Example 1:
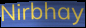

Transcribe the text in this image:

Nirbhay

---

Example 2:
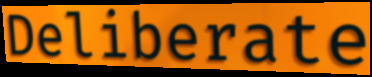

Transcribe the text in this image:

Deliberate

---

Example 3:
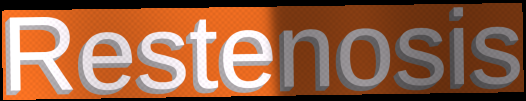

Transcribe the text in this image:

Restenosis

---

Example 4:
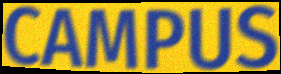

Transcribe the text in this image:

CAMPUS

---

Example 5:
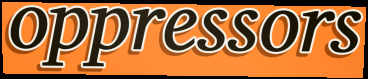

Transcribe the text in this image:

oppressors